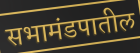
सभामंडपातील